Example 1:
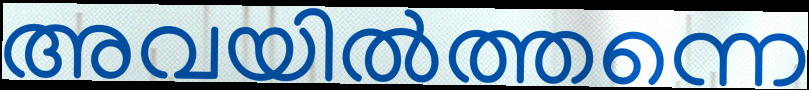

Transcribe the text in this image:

അവയിൽത്തന്നെ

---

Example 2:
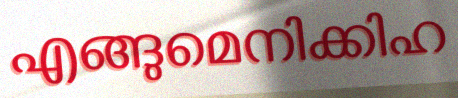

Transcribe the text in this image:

എങ്ങുമെനിക്കിഹ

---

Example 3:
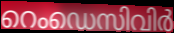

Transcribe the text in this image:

റെംഡെസിവിർ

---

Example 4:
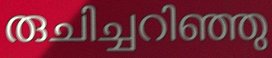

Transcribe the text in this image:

രുചിച്ചറിഞ്ഞു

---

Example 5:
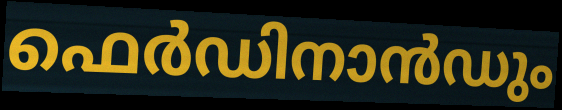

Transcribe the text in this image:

ഫെർഡിനാൻഡും